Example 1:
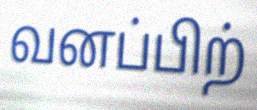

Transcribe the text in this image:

வனப்பிற்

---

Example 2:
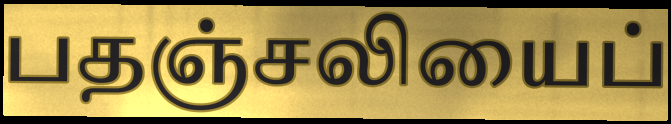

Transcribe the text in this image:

பதஞ்சலியைப்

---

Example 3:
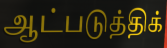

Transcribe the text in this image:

ஆட்படுத்திக்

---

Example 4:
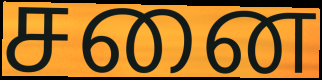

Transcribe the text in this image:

சனை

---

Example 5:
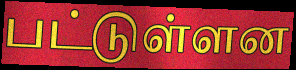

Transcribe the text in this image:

பட்டுள்ளன